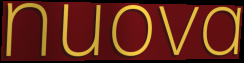
nuova